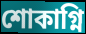
শোকাগ্নি